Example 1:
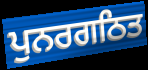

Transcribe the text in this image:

ਪੁਨਰਗਠਿਤ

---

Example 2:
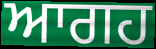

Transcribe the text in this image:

ਆਗਹ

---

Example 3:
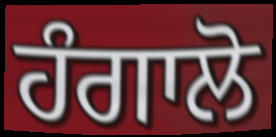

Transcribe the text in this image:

ਹੰਗਾਲੋ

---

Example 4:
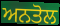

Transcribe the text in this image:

ਅਨਤੋਲ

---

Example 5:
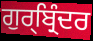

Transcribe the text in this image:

ਗੁਰ੍ਬ੍ਰਿੰਦਰ